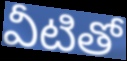
వీటితో